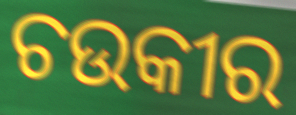
ଚଉକୀର